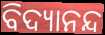
ବିଦ୍ୟାନନ୍ଦ